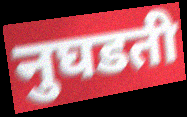
नुघडती